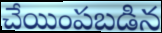
చేయింపబడిన